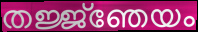
തജ്ജ്ഞേയം